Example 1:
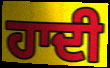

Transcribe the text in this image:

ਹਾਦੀ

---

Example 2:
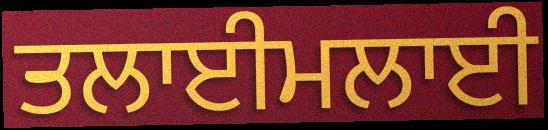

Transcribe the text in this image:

ਤਲਾਈਮਲਾਈ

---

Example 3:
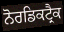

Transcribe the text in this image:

ਨੋਰਡਿਕਟ੍ਰੈਕ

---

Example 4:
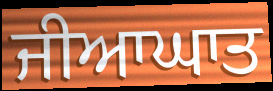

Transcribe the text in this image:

ਜੀਆਘਾਤ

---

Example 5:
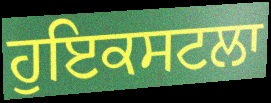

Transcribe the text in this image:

ਹੁਇਕਸਟਲਾ